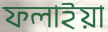
ফলাইয়া